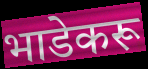
भाडेकरू